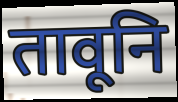
तावूनि